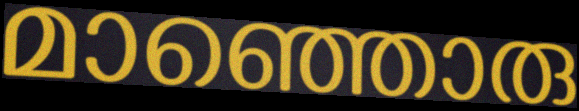
മാഞ്ഞൊരു